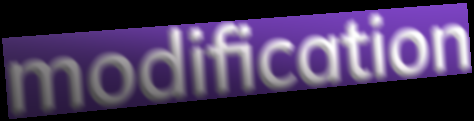
modification